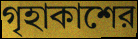
গৃহাকাশের